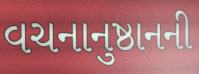
વચનાનુષ્ઠાનની